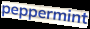
peppermint